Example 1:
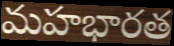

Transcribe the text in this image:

మహభారత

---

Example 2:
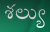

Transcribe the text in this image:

శల్యు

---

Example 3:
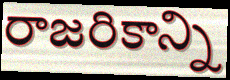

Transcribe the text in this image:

రాజరికాన్ని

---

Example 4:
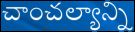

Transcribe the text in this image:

చాంచల్యాన్ని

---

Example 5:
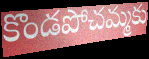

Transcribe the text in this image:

కొండపోచమ్మకు